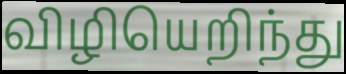
விழியெறிந்து